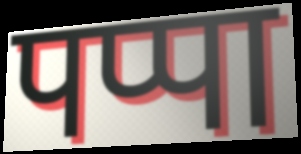
पप्‍पा